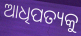
ଆଧିପତ୍ୟକୁ